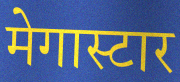
मेगास्टार